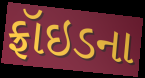
ફ્રૉઇડના